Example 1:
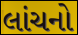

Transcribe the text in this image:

લાંચનો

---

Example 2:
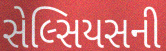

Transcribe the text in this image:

સેલ્સિયસની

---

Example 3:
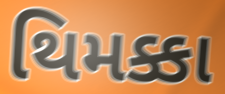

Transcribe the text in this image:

થિમક્કા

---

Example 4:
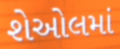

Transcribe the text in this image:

શેઓલમાં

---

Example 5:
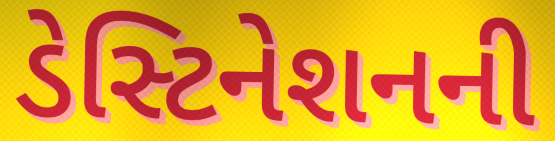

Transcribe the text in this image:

ડેસ્ટિનેશનની